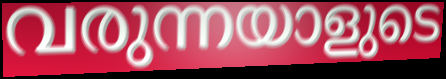
വരുന്നയാളുടെ